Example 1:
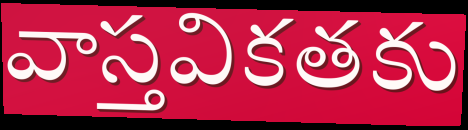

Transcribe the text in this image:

వాస్తవికతకు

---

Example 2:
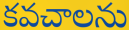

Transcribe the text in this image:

కవచాలను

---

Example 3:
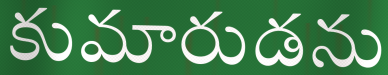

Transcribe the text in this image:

కుమారుడను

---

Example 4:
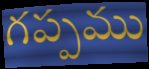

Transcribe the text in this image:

గప్పము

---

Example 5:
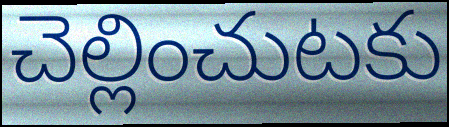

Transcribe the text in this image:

చెల్లించుటకు